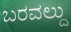
ಬರವಲ್ದು